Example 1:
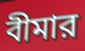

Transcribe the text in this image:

বীমার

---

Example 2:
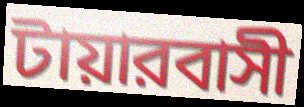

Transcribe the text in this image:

টায়ারবাসী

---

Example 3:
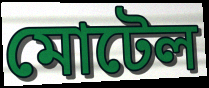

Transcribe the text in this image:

মোটেল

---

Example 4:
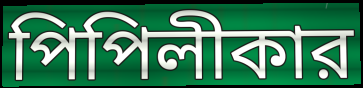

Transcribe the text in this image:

পিপিলীকার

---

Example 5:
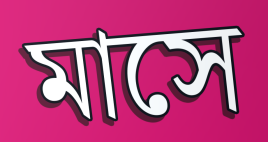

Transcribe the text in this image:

মাসে